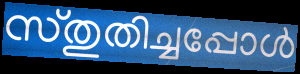
സ്തുതിച്ചപ്പോൾ